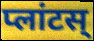
प्लांटस्